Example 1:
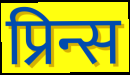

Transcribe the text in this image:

प्रिन्स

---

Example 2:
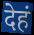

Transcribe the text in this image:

देहं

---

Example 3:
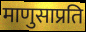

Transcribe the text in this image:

माणुसाप्रति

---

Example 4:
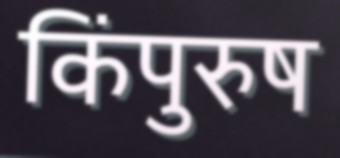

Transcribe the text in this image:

किंपुरुष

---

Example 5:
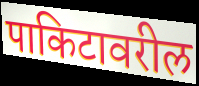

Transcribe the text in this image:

पाकिटावरील